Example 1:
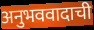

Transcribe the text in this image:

अनुभववादाची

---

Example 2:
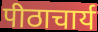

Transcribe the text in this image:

पीठाचार्य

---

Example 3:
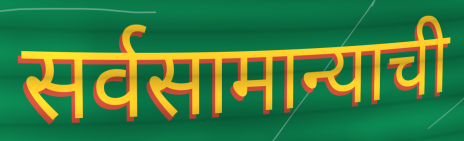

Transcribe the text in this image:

सर्वसामान्याची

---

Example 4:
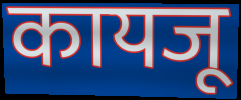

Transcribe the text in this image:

कायजू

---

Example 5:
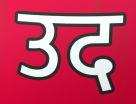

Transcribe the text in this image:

उद